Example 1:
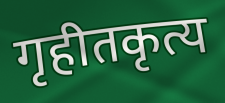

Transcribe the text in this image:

गृहीतकृत्य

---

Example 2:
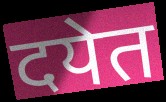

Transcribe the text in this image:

दयेत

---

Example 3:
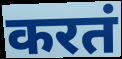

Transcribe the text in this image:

करतं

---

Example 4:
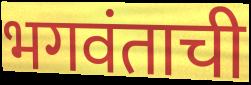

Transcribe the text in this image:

भगवंताची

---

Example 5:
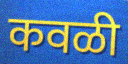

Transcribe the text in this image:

कवळी